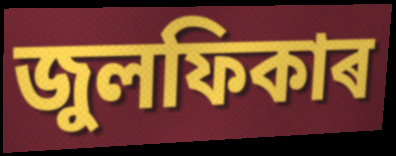
জুলফিকাৰ